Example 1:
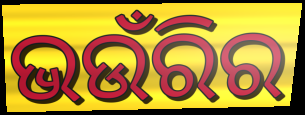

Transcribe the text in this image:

ଭଉଁରିର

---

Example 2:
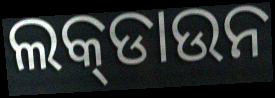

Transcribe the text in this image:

ଲକ୍‍ଡାଉନ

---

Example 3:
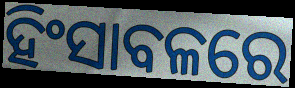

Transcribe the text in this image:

ହିଂସାବଳରେ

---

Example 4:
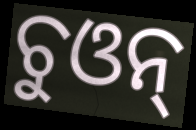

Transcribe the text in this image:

ଚୁଓନ୍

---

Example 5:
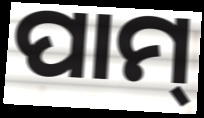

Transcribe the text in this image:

ପାମ୍